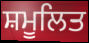
ਸ਼ਮੂਲਿਤ